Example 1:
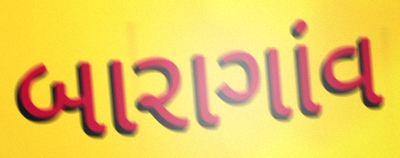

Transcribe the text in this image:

બારાગાંવ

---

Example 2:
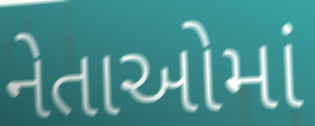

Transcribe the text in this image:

નેતાઓમાં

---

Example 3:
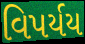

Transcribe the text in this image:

વિપર્યય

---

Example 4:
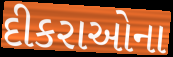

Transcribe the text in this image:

દીકરાઓના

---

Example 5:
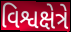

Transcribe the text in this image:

વિશ્વક્ષેત્રે